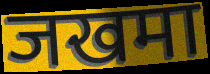
जखमा